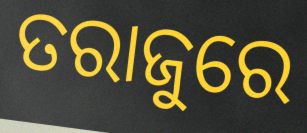
ତରାଜୁରେ